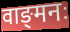
वाङ्मनः